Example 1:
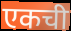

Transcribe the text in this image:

एकची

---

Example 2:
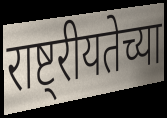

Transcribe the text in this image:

राष्ट्रीयतेच्या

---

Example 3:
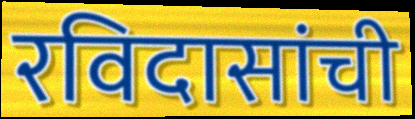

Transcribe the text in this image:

रविदासांची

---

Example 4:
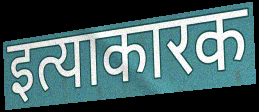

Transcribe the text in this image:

इत्याकारक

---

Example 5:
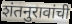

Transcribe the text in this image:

शंतनुरावांची